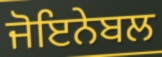
ਜੋਇਨੇਬਲ